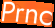
Prnc